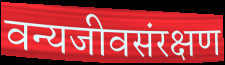
वन्यजीवसंरक्षण